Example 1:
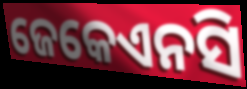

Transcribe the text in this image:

ଜେକେଏନସି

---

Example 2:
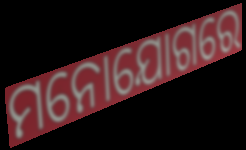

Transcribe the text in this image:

ମନୋଯୋଗରେ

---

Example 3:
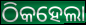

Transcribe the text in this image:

ଠିକହେଲା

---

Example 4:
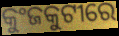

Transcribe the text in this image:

କୁଂଜକୁଟୀରେ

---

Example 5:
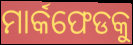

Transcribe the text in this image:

ମାର୍କଫେଡକୁ